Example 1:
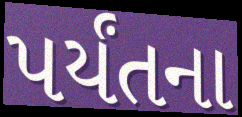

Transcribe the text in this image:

પર્યંતના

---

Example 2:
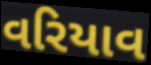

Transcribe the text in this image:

વરિયાવ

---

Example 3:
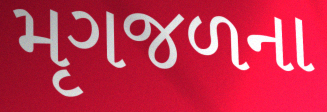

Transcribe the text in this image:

મૃગજળના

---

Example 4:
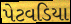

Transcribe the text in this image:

પેટવડિયા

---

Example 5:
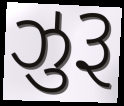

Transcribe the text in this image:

ઝુરૂ